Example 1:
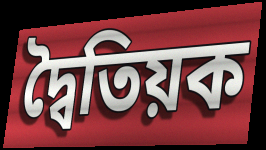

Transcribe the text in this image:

দ্বৈতিয়ক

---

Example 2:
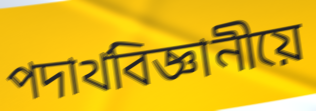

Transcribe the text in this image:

পদাৰ্থবিজ্ঞানীয়ে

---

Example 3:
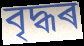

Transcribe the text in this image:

বৃদ্ধৰ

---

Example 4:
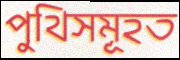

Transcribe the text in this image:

পুথিসমূহত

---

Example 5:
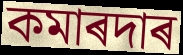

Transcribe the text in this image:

কমাৰদাৰ